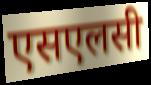
एसएलसी